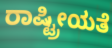
ರಾಷ್ಟ್ರೀಯತೆ